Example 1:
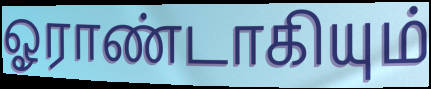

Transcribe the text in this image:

ஓராண்டாகியும்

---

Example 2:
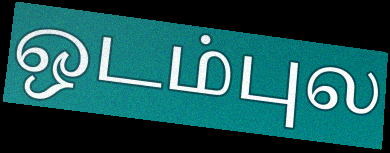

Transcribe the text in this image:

ஒடம்புல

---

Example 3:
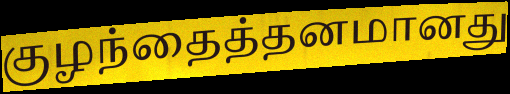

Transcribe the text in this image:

குழந்தைத்தனமானது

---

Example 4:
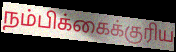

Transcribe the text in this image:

நம்பிக்கைக்குரிய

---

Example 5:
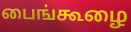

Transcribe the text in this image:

பைங்கூழை